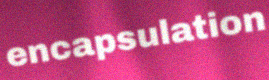
encapsulation